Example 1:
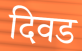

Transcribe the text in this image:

दिवड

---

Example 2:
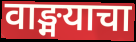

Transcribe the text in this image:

वाङ्मयाचा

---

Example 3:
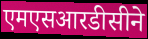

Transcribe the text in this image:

एमएसआरडीसीने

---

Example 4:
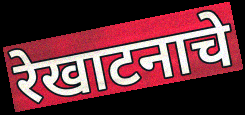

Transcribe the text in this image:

रेखाटनाचे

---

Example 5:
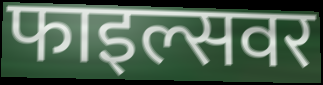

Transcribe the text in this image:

फाइल्सवर